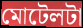
মোটেলটা